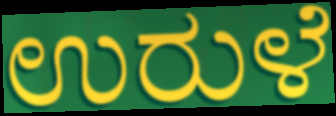
ಉರುಳೆ